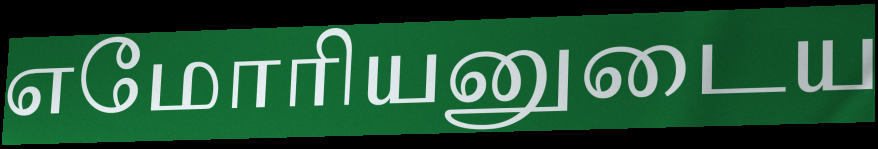
எமோரியனுடைய